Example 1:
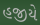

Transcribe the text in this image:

હજીયે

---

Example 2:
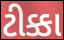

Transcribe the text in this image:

ટીક્કા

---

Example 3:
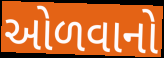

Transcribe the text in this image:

ઓળવાનો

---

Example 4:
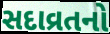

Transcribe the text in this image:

સદાવ્રતનો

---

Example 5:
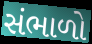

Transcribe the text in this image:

સંભાળો